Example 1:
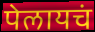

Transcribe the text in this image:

पेलायचं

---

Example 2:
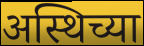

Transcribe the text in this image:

अस्थिच्या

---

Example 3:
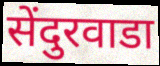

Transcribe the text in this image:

सेंदुरवाडा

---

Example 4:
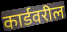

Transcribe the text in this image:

कार्डवरील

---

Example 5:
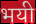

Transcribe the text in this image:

भयी